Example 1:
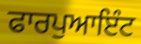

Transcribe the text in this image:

ਫਾਰਪੁਆਇੰਟ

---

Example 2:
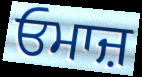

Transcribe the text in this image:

ਓਮਾਜ਼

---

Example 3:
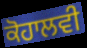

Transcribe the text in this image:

ਕੋਹਾਲਵੀ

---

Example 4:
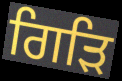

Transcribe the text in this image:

ਗਿੜਿ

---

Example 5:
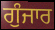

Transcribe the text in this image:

ਗੁੰਜਾਰ